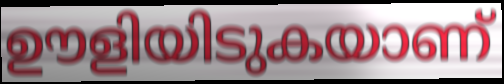
ഊളിയിടുകയാണ്